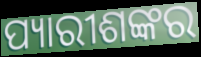
ପ୍ୟାରୀଶଙ୍କର